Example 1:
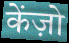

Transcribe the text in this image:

केंज़ो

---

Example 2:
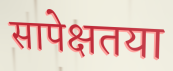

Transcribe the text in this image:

सापेक्षतया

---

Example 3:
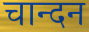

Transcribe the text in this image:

चान्दन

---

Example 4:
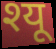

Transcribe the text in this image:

श्यू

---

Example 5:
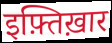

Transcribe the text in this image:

इफ़्तिख़ार